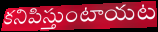
కనిపిస్తుంటాయట